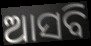
ଆସବି